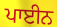
ਪਾਈਨ